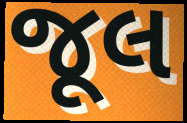
જૂલ